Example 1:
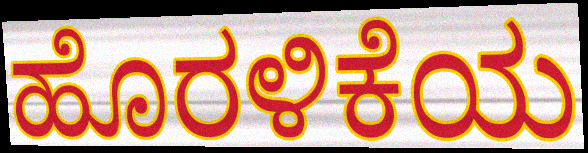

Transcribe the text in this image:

ಹೊರಳಿಕೆಯ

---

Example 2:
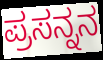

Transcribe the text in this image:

ಪ್ರಸನ್ನನ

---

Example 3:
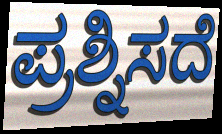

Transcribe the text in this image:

ಪ್ರಶ್ನಿಸದೆ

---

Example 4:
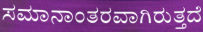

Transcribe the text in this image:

ಸಮಾನಾಂತರವಾಗಿರುತ್ತದೆ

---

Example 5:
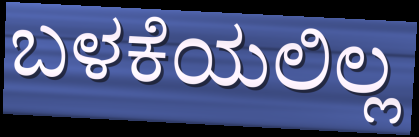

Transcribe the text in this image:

ಬಳಕೆಯಲಿಲ್ಲ